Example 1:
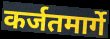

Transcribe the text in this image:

कर्जतमार्गे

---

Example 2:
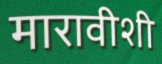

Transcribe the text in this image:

मारावीशी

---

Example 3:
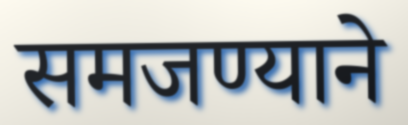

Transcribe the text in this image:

समजण्याने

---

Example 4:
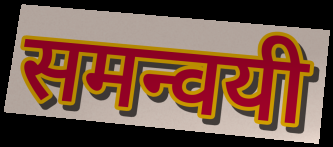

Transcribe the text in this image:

समन्वयी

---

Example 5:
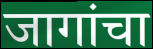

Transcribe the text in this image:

जागांचा